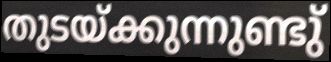
തുടയ്ക്കുന്നുണ്ടു്